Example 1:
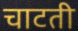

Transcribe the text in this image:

चाटती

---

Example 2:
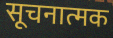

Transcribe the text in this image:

सूचनात्मक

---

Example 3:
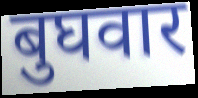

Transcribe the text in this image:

बुघवार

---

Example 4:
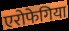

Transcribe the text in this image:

एरोफेगिया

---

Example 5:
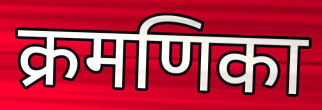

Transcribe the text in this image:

क्रमणिका